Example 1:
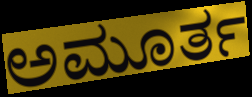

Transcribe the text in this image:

ಅಮೂರ್ತ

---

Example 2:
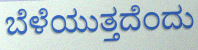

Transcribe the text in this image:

ಬೆಳೆಯುತ್ತದೆಂದು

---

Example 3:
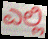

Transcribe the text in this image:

ಎಲ್ಲಿ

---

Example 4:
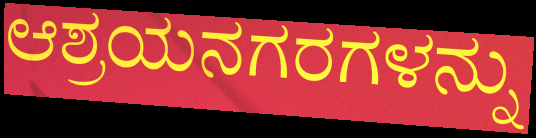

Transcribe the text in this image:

ಆಶ್ರಯನಗರಗಳನ್ನು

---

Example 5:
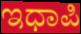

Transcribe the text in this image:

ಇಧಾಪಿ